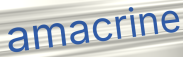
amacrine